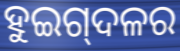
ହୁଇଗ୍‌ଦଳର